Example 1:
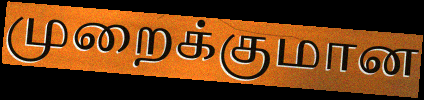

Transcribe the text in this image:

முறைக்குமான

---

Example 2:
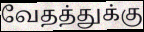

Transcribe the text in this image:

வேதத்துக்கு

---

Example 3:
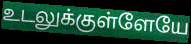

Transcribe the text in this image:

உடலுக்குள்ளேயே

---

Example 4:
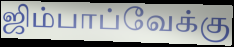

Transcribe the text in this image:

ஜிம்பாப்வேக்கு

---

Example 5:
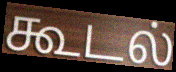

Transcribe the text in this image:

கூடல்